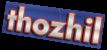
thozhil